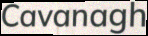
Cavanagh